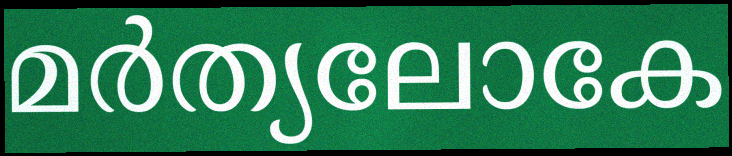
മർത്യലോകേ